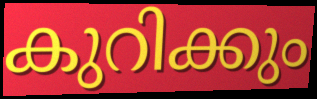
കുറിക്കും